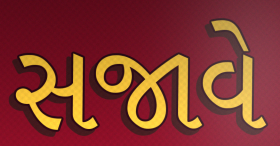
સજાવે